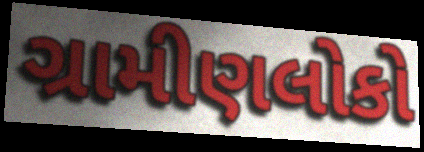
ગ્રામીણલોકો